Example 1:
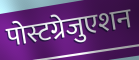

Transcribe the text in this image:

पोस्टग्रेजुएशन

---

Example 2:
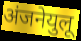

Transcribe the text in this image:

अंजनेयुलू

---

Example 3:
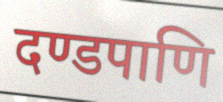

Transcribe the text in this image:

दण्डपाणि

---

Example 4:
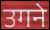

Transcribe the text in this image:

उगने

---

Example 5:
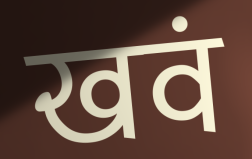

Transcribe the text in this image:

खवं